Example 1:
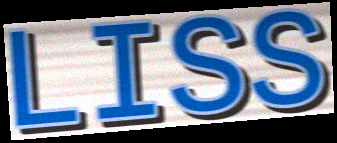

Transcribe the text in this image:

LISS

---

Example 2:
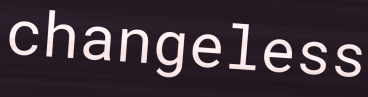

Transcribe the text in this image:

changeless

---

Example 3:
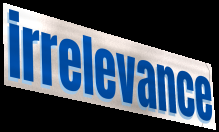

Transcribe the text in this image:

irrelevance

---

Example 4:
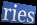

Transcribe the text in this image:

ries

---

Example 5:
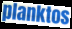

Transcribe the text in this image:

planktos